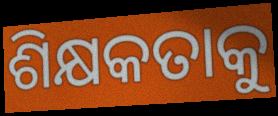
ଶିକ୍ଷକତାକୁ